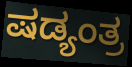
ಷಡ್ಯಂತ್ರ